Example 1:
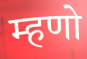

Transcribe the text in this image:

म्हणो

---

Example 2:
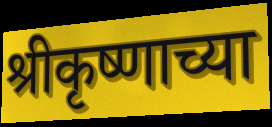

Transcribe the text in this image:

श्रीकृष्णाच्या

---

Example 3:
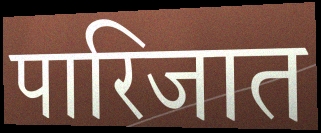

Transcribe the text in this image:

पारिजात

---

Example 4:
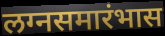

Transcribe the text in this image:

लग्नसमारंभास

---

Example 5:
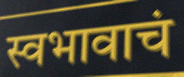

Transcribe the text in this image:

स्वभावाचं